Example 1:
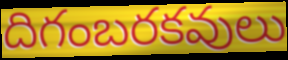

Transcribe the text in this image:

దిగంబరకవులు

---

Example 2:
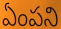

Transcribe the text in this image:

ఏంపని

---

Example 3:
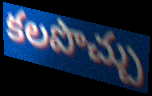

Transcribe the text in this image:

కలపొచ్చు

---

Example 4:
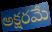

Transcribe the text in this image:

అక్షరమే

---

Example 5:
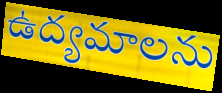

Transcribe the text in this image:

ఉద్యమాలను